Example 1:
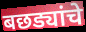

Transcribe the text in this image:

बछड्यांचे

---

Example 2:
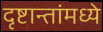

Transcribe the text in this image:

दृष्टान्तांमध्ये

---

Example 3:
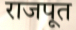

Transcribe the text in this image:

राजपूत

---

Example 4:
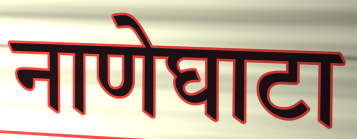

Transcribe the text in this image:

नाणेघाटा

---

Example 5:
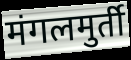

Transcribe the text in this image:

मंगलमुर्ती